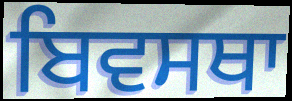
ਬਿਵਸਥਾ